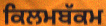
ਕਿਲਮਬੱਕਮ